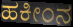
ಹಕೀಂನ